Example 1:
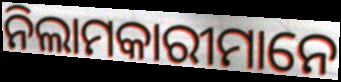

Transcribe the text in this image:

ନିଲାମକାରୀମାନେ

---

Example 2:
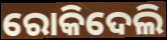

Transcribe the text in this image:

ରୋକିଦେଲି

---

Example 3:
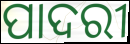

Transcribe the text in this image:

ପାଦରୀ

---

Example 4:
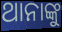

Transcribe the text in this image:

ଥାନାଙ୍କୁ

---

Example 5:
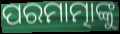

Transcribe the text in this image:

ପରମାତ୍ମାଙ୍କୁ